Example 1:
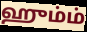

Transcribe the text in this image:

ஹும்ம்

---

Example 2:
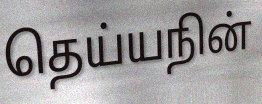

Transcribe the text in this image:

தெய்யநின்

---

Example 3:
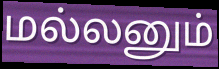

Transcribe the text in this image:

மல்லனும்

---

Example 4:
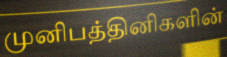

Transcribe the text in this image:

முனிபத்தினிகளின்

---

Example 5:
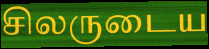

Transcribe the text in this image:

சிலருடைய